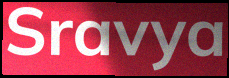
Sravya